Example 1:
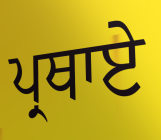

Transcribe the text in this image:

ਪ੍ਰਥਾਏ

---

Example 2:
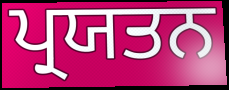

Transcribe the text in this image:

ਪ੍ਰਯਤਨ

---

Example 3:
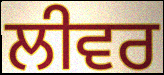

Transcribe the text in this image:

ਲੀਵਰ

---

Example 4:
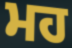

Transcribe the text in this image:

ਮਹ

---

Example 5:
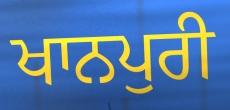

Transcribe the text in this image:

ਖਾਨਪੁਰੀ